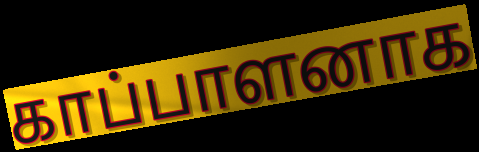
காப்பாளனாக